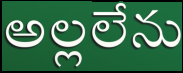
అల్లలేను